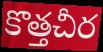
కొత్తచీర